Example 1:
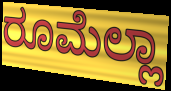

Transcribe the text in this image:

ರೂಮೆಲ್ಲಾ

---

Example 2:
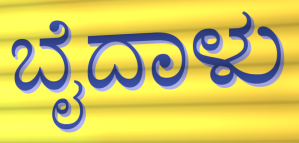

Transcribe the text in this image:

ಬೈದಾಳು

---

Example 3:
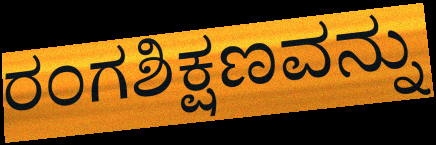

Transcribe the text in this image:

ರಂಗಶಿಕ್ಷಣವನ್ನು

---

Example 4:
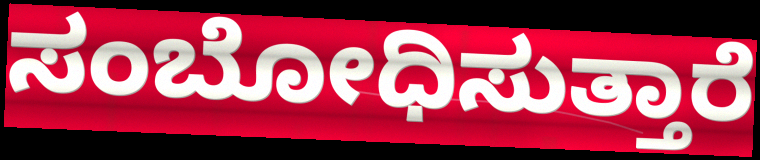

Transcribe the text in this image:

ಸಂಬೋಧಿಸುತ್ತಾರೆ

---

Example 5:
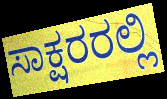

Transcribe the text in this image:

ಸಾಕ್ಷರರಲ್ಲಿ